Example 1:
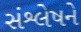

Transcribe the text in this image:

સંશ્લેષને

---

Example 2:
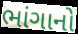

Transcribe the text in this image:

ભાંગાનો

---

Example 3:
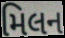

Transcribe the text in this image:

મિલન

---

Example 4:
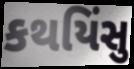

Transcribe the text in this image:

કથયિંસુ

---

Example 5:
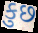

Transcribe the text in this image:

કુછ